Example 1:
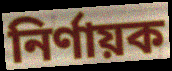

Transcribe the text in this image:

নিৰ্ণায়ক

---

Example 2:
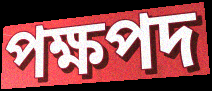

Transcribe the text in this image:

পক্ষপদ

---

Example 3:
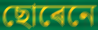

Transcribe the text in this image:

ছোৰেনে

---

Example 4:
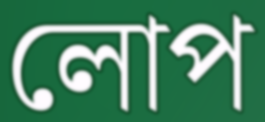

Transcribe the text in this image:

লোপ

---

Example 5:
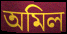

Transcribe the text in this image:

অমিল